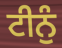
ਟੀਨੁੰ